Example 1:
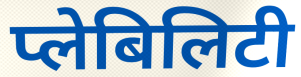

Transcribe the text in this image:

प्लेबिलिटी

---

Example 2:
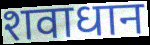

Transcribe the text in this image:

शवाधान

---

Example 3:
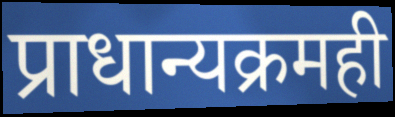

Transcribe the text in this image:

प्राधान्यक्रमही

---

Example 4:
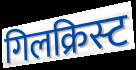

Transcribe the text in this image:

गिलक्रिस्‍ट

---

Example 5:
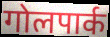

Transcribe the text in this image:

गोलपार्क